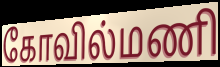
கோவில்மணி